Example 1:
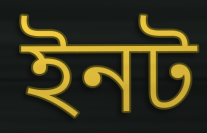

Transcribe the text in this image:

ইনট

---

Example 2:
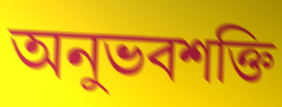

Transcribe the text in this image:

অনুভবশক্তি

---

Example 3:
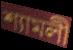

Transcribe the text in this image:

শ্যামলী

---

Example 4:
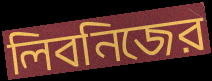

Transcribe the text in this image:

লিবনিজের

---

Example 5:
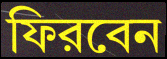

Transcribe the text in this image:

ফিরবেন